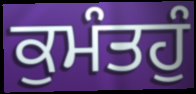
ਕੁਮੰਤਹੁੰ